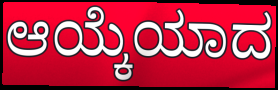
ಆಯ್ಕೆಯಾದ